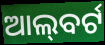
ଆଲ୍‌ବର୍ଟ